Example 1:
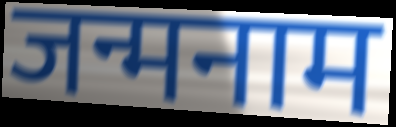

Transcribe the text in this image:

जन्मनाम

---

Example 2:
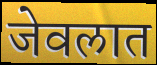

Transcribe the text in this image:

जेवलात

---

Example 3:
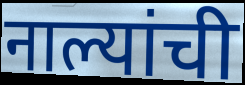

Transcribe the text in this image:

नाल्यांची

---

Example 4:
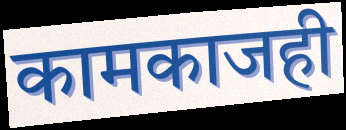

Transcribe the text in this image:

कामकाजही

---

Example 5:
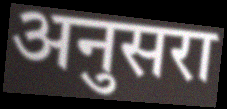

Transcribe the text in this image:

अनुसरा